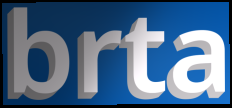
brta